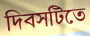
দিবসটিতে